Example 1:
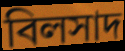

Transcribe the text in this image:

বিলসাদ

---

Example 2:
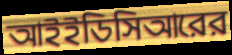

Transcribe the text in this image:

আইইডিসিআরের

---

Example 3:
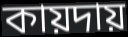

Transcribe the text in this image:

কায়দায়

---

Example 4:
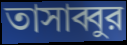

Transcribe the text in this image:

তাসাব্বুর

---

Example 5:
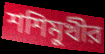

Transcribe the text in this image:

শশিমুখীর